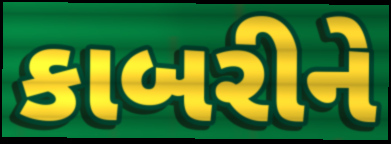
કાબરીને